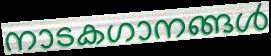
നാടകഗാനങ്ങൾ